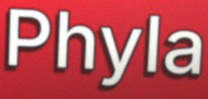
Phyla